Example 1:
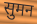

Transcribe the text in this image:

सुमन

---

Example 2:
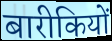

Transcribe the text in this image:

बारीकियों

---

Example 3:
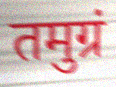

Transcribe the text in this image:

तमुग्रं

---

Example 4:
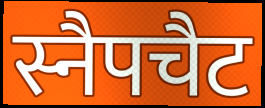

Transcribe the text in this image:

स्नैपचैट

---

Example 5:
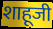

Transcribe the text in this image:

शाहूजी